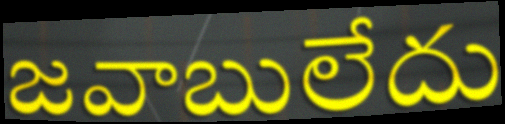
జవాబులేదు